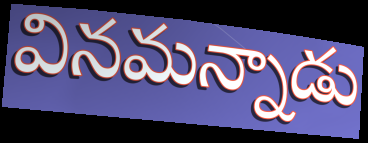
వినమన్నాడు